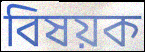
বিষয়ক